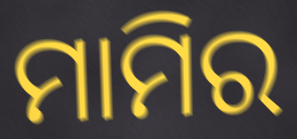
ମାମିର